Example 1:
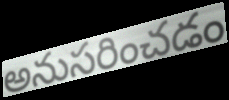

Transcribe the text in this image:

అనుసరించడం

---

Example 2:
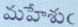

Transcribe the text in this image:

మహేశుఁ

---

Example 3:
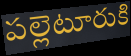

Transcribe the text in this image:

పల్లెటూరుకి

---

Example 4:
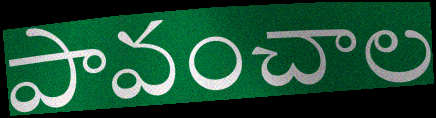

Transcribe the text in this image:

పావంచాల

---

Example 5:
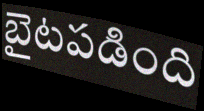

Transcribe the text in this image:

బైటపడింది